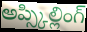
అప్స్కిల్లింగ్